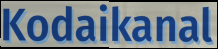
Kodaikanal